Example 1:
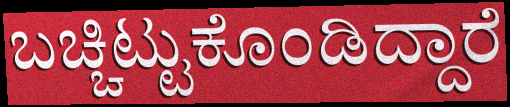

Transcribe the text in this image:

ಬಚ್ಚಿಟ್ಟುಕೊಂಡಿದ್ದಾರೆ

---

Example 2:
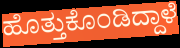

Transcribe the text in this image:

ಹೊತ್ತುಕೊಂಡಿದ್ದಾಳೆ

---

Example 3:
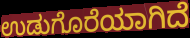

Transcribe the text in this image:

ಉಡುಗೊರೆಯಾಗಿದೆ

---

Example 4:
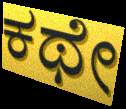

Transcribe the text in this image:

ಕಥೇ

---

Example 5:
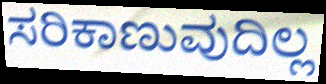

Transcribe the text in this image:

ಸರಿಕಾಣುವುದಿಲ್ಲ